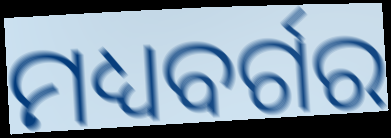
ମଧ୍ୟବର୍ଗର